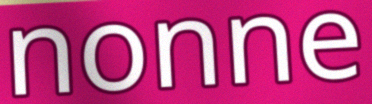
nonne